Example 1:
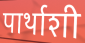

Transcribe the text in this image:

पार्थाशी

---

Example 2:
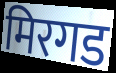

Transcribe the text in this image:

मिरगड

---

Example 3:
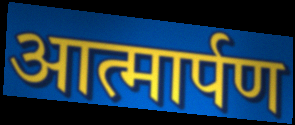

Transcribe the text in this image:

आत्मार्पण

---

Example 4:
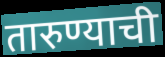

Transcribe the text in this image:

तारुण्याची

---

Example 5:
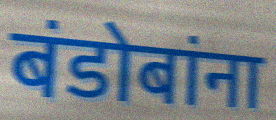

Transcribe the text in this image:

बंडोबांना